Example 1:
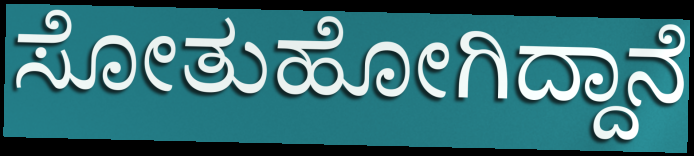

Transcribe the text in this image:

ಸೋತುಹೋಗಿದ್ದಾನೆ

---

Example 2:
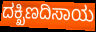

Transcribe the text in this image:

ದಕ್ಖಿಣದಿಸಾಯ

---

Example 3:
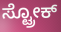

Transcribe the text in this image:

ಸ್ಟ್ರೋಕ್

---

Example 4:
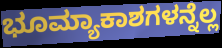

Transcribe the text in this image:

ಭೂಮ್ಯಾಕಾಶಗಳನ್ನೆಲ್ಲ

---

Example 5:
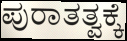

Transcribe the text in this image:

ಪುರಾತತ್ವಕ್ಕೆ